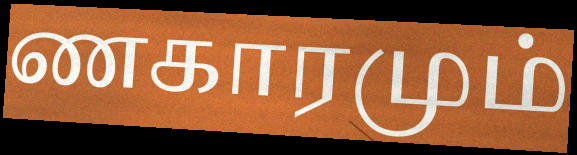
ணகாரமும்